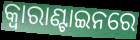
କ୍ବାରାଣ୍ଟାଇନରେ